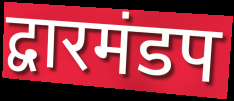
द्वारमंडप